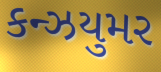
કન્ઝયુમર